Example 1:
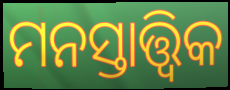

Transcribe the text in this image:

ମନସ୍ତାତ୍ତ୍ବିକ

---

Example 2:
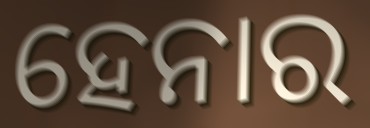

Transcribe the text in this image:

ହେନାର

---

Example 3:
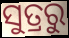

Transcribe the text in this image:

ସୁତ୍ରରୁ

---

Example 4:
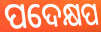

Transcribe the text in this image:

ପଦେକ୍ଷପ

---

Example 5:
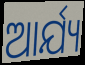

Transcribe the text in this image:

ଆର୍ଯ୍ୟ